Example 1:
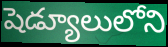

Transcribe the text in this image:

షెడ్యూలులోని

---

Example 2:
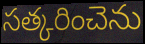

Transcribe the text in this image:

సత్కరించెను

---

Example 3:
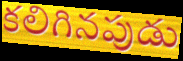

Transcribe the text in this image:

కలిగినపుడు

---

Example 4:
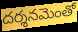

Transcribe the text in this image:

దర్శనమెంతో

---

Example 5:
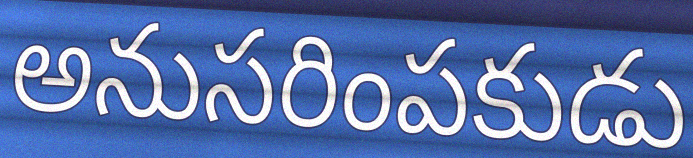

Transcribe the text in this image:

అనుసరింపకుడు